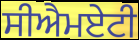
ਸੀਐਮਏਟੀ